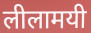
लीलामयी